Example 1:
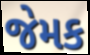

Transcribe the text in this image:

જેમક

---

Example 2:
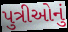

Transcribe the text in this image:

પુત્રીઓનું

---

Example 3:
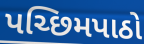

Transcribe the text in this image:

પચ્છિમપાઠો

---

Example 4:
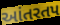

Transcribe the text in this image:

આંતરતપ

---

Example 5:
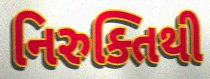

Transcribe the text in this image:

નિરુક્તિથી